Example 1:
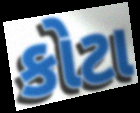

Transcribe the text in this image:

કોટા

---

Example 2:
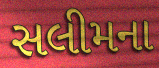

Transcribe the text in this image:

સલીમના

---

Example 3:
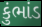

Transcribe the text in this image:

કુંભાંડ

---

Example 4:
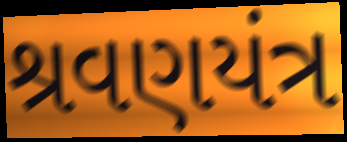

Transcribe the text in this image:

શ્રવણયંત્ર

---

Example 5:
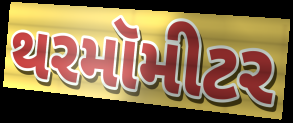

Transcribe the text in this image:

થરમૉમીટર